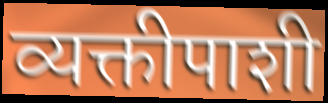
व्यक्तीपाशी